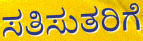
ಸತಿಸುತರಿಗೆ